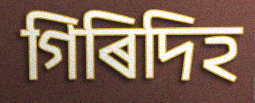
গিৰিদিহ